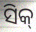
ସିକ୍